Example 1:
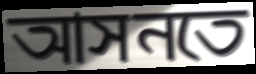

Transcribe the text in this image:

আসনতে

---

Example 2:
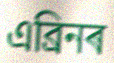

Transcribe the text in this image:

এব্ৰিনৰ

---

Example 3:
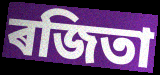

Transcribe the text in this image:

ৰজিতা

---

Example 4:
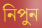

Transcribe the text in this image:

নিপুন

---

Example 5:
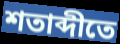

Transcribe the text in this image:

শতাব্দীতে